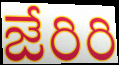
జేరిరి